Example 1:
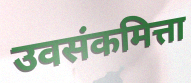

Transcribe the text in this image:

उवसंकमित्ता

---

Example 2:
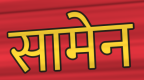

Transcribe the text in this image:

सामेन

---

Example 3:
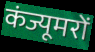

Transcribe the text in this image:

कंज्यूमरों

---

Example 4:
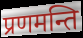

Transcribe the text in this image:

प्रणमन्ति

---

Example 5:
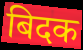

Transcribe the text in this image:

बिदक